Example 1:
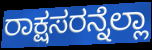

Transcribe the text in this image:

ರಾಕ್ಷಸರನ್ನೆಲ್ಲಾ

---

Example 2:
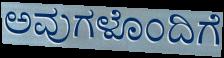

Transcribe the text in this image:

ಅವುಗಳೊಂದಿಗೆ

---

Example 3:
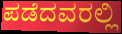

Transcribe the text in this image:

ಪಡೆದವರಲ್ಲಿ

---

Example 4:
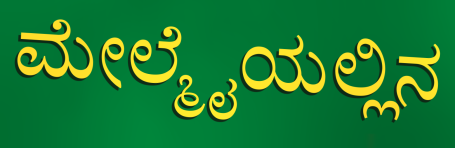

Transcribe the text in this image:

ಮೇಲ್ಮೈಯಲ್ಲಿನ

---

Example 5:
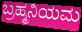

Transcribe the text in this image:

ಬ್ರಹ್ಮನಿಯಮ